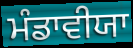
ਮੰਡਾਵੀਯਾ